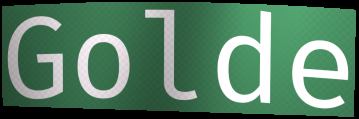
Golde